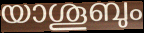
യാശൂബും